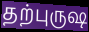
தற்புருஷ